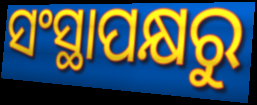
ସଂସ୍ଥାପକ୍ଷରୁ